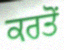
ਕਰਤੋਂ